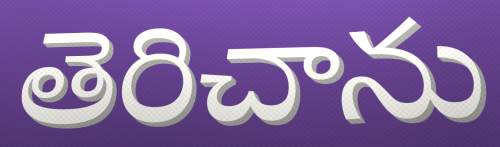
తెరిచాను